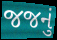
જજનું